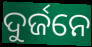
ଦୁର୍ଜନେ